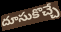
దూసుకొచ్చే